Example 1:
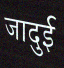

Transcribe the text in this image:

जादुई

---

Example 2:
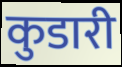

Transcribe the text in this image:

कुडारी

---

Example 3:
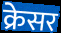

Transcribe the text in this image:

क्रेसर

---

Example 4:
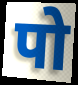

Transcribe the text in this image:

पो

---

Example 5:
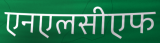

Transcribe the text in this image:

एनएलसीएफ